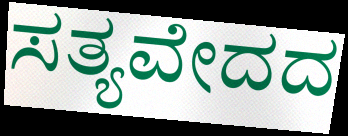
ಸತ್ಯವೇದದ